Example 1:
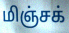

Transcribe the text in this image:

மிஞ்சக்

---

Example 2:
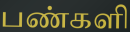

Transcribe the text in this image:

பண்களி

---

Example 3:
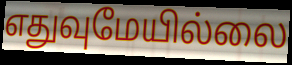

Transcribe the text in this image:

எதுவுமேயில்லை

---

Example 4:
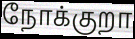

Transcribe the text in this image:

நோக்குறா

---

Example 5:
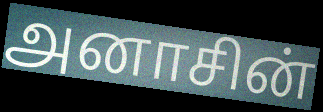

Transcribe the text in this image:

அனாசின்